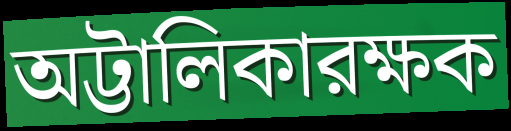
অট্টালিকারক্ষক